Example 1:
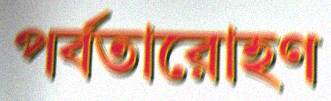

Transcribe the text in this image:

পর্বতারোহণ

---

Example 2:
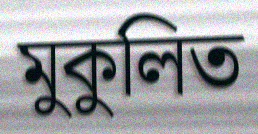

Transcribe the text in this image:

মুকুলিত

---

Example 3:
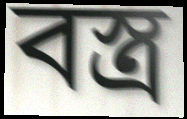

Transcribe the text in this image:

বস্ত্র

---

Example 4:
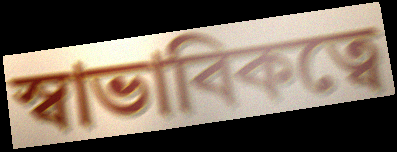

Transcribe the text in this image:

স্বাভাবিকত্বে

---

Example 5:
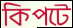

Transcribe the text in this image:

কিপটে